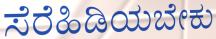
ಸೆರೆಹಿಡಿಯಬೇಕು